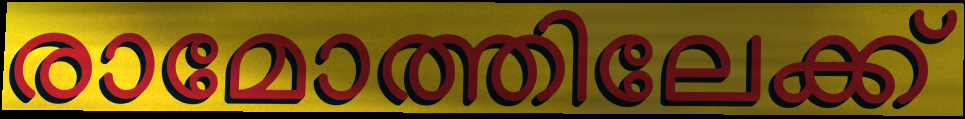
രാമോത്തിലേക്ക്